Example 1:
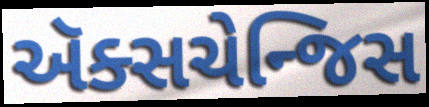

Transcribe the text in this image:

ઍક્સચેન્જિસ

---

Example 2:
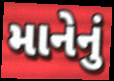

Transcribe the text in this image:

માનેનું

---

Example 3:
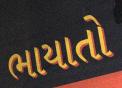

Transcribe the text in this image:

ભાયાતો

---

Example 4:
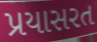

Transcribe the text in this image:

પ્રયાસરત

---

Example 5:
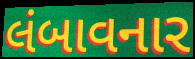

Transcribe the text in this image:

લંબાવનાર